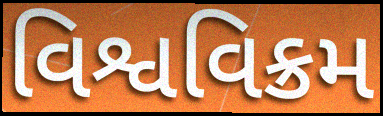
વિશ્વવિક્રમ